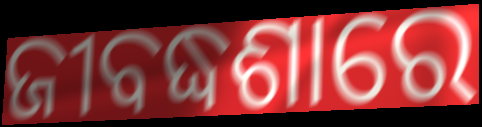
ଜୀବଦ୍ଧଶାରେ